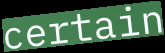
certain